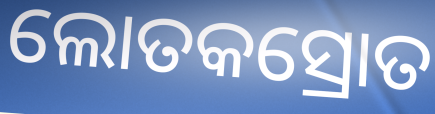
ଲୋତକସ୍ରୋତ